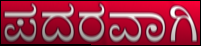
ಪದರವಾಗಿ